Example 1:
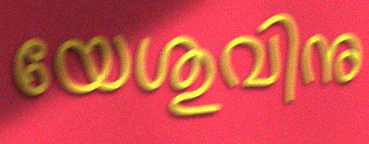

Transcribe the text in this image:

യേശുവിനു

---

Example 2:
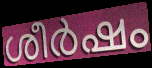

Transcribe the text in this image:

ശീർഷം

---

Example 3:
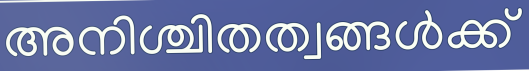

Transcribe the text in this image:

അനിശ്ചിതത്വങ്ങൾക്ക്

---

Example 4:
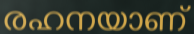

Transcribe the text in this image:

രഹനയാണ്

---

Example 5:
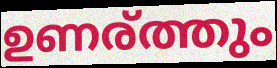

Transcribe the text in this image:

ഉണര്ത്തും